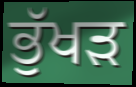
ਭੁੱਖੜ